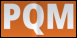
PQM